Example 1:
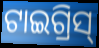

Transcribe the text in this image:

ଟାଇଗ୍ରିସ୍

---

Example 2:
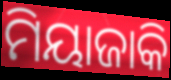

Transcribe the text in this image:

ମିୟାଜାକି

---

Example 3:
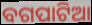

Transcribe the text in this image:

ବଗପାଟିଆ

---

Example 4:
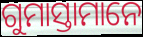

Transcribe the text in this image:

ଗୁମାସ୍ତାମାନେ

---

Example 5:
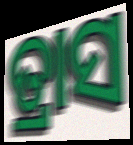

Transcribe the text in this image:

ତ୍ରାସ